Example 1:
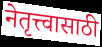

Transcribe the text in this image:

नेतृत्त्वासाठी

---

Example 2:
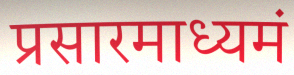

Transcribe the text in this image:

प्रसारमाध्यमं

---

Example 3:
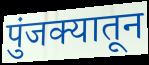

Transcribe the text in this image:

पुंजक्यातून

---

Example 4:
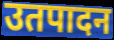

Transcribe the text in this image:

उतपादन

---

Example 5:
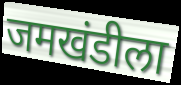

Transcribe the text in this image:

जमखंडीला